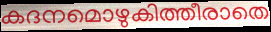
കദനമൊഴുകിത്തീരാതെ